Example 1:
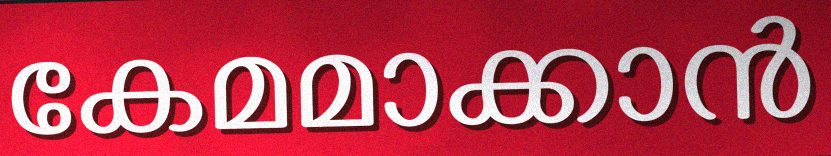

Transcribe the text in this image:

കേമമാക്കാൻ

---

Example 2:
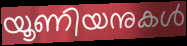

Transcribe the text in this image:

യൂണിയനുകൾ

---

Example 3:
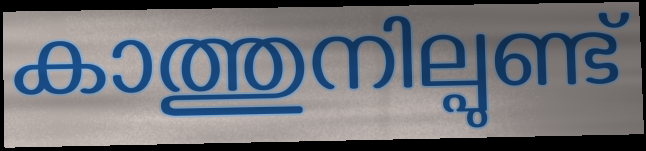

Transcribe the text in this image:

കാത്തുനില്പുണ്ട്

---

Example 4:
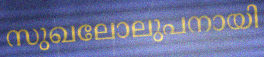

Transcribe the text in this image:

സുഖലോലുപനായി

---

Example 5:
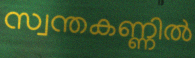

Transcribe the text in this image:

സ്വന്തകണ്ണിൽ